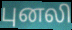
புனலி